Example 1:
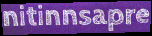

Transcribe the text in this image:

nitinnsapre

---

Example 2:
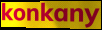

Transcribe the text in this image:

konkany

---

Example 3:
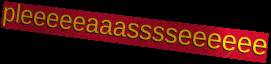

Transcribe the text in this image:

pleeeeeaaasssseeeeee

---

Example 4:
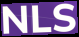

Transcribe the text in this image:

NLS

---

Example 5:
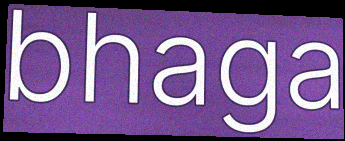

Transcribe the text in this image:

bhaga